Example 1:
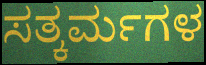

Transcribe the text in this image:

ಸತ್ಕರ್ಮಗಳ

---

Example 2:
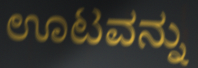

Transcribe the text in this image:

ಊಟವನ್ನು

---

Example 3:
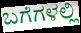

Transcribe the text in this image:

ಬಗೆಗಳಲ್ಲಿ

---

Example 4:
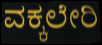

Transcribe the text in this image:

ವಕ್ಕಲೇರಿ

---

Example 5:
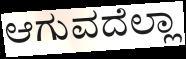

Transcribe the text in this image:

ಆಗುವದೆಲ್ಲಾ